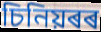
চিনিয়ৰৰ